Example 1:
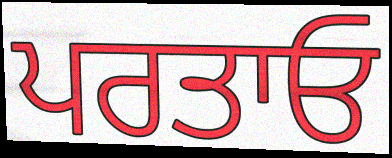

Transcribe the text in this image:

ਪਰਤਾਓ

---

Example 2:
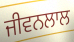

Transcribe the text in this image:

ਜੀਵਨਲਾਲ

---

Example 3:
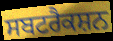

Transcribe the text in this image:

ਸਬਟਰੈਕਸ਼ਨ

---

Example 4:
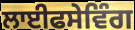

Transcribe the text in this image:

ਲਾਈਫਸੇਵਿੰਗ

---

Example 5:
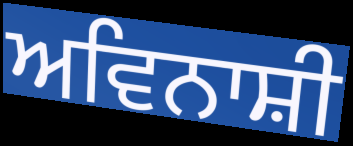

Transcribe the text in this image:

ਅਵਿਨਾਸ਼ੀ